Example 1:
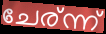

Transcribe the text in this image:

ചേര്ന്ന്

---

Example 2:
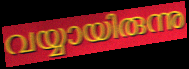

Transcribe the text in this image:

വയ്യായിരുന്നു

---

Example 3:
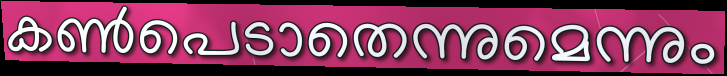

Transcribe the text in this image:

കൺപെടാതെന്നുമെന്നും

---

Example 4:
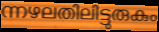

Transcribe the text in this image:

ന്നഴലതിലിട്ടുരുകും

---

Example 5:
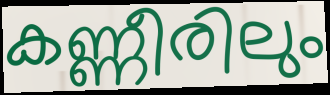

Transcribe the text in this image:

കണ്ണീരിലും